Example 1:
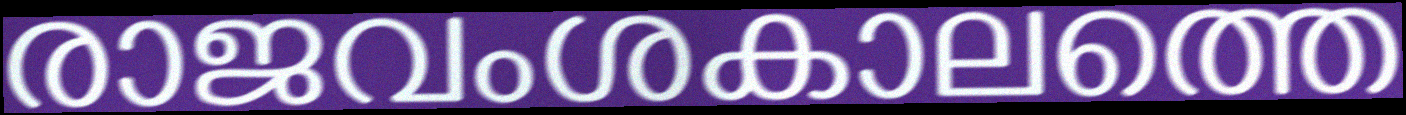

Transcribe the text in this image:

രാജവംശകാലത്തെ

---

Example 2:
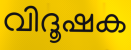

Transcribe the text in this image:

വിദൂഷക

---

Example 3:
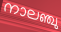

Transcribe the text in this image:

നാലഞ്ചു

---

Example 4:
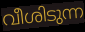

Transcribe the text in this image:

വീശിടുന്ന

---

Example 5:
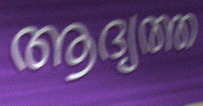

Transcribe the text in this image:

ആദ്യത്ത